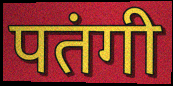
पतंगी